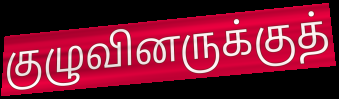
குழுவினருக்குத்